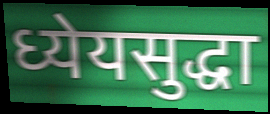
ध्येयसुद्धा